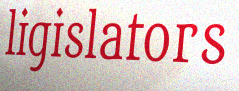
ligislators